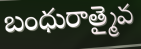
బంధురాత్మైవ